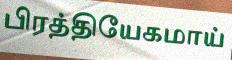
பிரத்தியேகமாய்